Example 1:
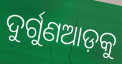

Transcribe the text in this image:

ଦୁର୍ଗୁଣଆଡ଼କୁ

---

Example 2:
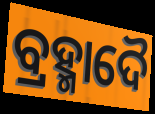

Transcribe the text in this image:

ବ୍ରହ୍ମାଦୈ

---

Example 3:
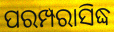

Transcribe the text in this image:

ପରମ୍ପରାସିଦ୍ଧ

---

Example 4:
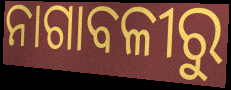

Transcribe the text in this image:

ନାଗାବଳୀରୁ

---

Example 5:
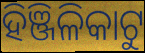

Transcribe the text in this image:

ହିଞ୍ଜିଳିକାଟୁ